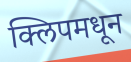
क्लिपमधून